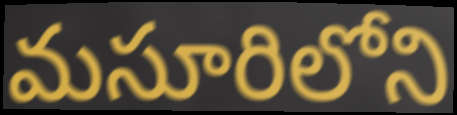
మసూరిలోని